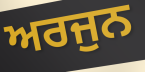
ਅਰਜੁਨ